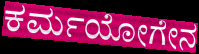
ಕರ್ಮಯೋಗೇನ